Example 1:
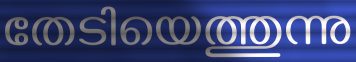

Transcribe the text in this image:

തേടിയെത്തുന്നു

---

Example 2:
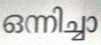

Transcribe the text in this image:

ഒന്നിച്ചാ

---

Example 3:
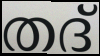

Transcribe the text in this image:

തദ്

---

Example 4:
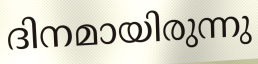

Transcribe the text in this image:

ദിനമായിരുന്നു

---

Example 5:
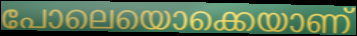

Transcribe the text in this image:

പോലെയൊക്കെയാണ്